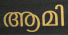
ആമി